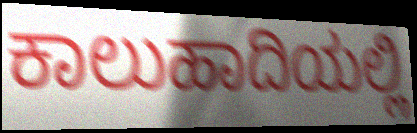
ಕಾಲುಹಾದಿಯಲ್ಲಿ